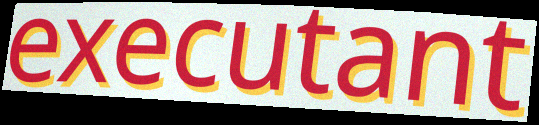
executant